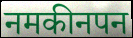
नमकीनपन